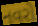
નવરો